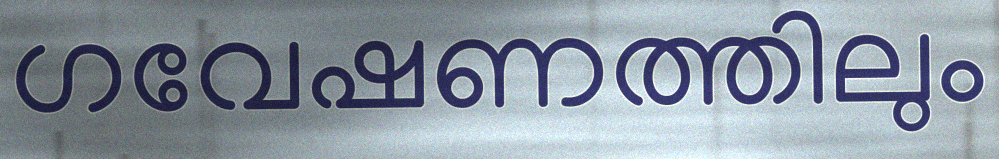
ഗവേഷണത്തിലും